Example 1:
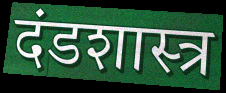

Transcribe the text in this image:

दंडशास्त्र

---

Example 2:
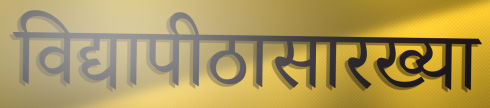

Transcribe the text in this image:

विद्यापीठासारख्या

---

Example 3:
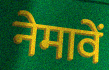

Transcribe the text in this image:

नेमावें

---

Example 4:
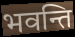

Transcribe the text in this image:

भवन्ति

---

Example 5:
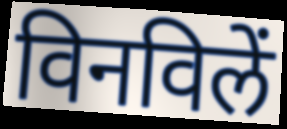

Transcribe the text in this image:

विनविलें